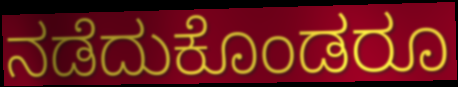
ನಡೆದುಕೊಂಡರೂ